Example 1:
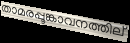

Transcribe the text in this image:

താമരപ്പൂങ്കാവനത്തില്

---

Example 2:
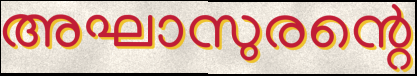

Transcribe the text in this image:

അഘാസുരന്റെ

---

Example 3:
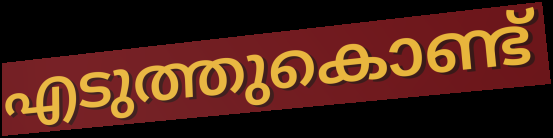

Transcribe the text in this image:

എടുത്തുകൊണ്ട്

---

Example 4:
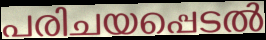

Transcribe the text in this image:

പരിചയപ്പെടൽ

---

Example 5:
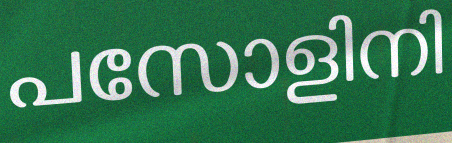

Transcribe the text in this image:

പസോളിനി